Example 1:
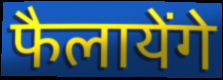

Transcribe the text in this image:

फैलायेंगे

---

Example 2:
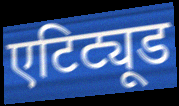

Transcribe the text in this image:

एटिट्यूड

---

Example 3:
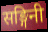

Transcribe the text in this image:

सङ्गिनी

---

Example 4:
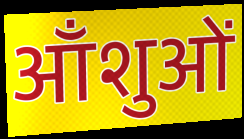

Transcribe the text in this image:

आँशुओं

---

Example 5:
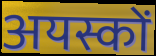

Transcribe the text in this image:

अयस्कों